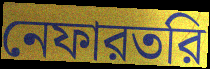
নেফারতরি